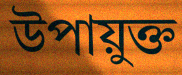
উপায়ুক্ত